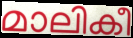
മാലികീ